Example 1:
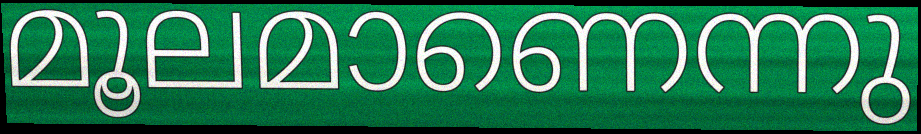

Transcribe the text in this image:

മൂലമാണെന്നു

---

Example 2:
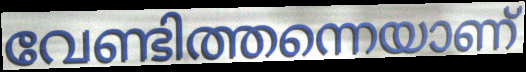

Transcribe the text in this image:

വേണ്ടിത്തന്നെയാണ്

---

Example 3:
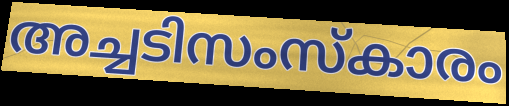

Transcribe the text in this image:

അച്ചടിസംസ്കാരം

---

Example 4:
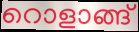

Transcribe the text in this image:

റൊളാങ്ങ്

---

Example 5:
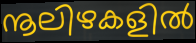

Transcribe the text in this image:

നൂലിഴകളിൽ